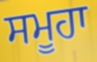
ਸਮੂਹਾ